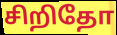
சிறிதோ